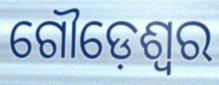
ଗୌଡ଼େଶ୍ୱର